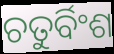
ଚତୁର୍ବିଂଶ